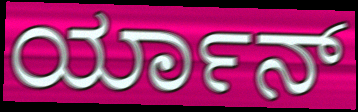
ರ್ಯಾನ್